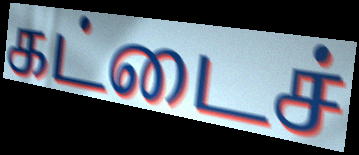
கட்டைச்